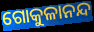
ଗୋକୁଳାନନ୍ଦ